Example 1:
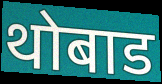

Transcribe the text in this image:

थोबाड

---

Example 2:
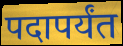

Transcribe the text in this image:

पदापर्यंत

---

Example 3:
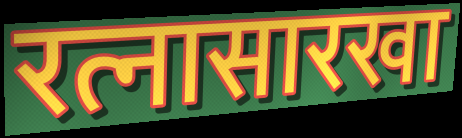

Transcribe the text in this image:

रत्नासारखा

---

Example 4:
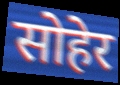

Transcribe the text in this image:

सोहेर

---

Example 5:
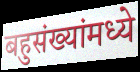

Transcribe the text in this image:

बहुसंख्यांमध्ये